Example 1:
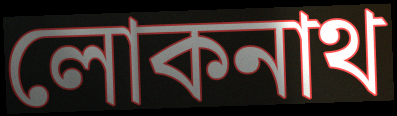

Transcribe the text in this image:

লোকনাথ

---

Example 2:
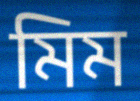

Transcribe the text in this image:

মিম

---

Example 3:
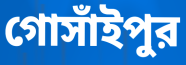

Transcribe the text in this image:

গোসাঁইপুর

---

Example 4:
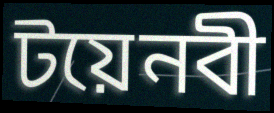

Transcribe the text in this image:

টয়েনবী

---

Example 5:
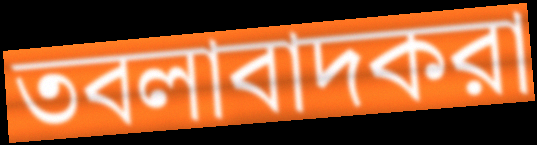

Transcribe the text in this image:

তবলাবাদকরা